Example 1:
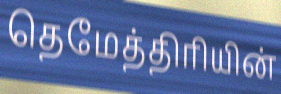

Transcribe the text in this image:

தெமேத்திரியின்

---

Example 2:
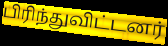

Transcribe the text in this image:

பிரிந்துவிட்டனர்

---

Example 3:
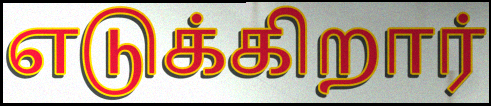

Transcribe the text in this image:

எடுக்கிறார்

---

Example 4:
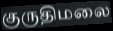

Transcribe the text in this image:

குருதிமலை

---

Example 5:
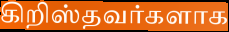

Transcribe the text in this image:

கிறிஸ்தவர்களாக